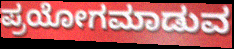
ಪ್ರಯೋಗಮಾಡುವ